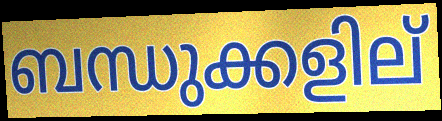
ബന്ധുക്കളില്